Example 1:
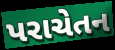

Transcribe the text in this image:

પરાચેતન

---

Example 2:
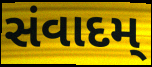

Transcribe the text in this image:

સંવાદમ્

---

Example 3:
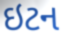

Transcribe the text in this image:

ઇટન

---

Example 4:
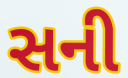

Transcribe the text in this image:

સની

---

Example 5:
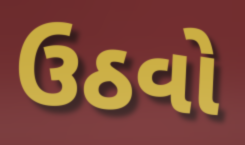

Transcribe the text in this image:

ઉઠવો